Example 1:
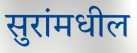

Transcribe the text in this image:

सुरांमधील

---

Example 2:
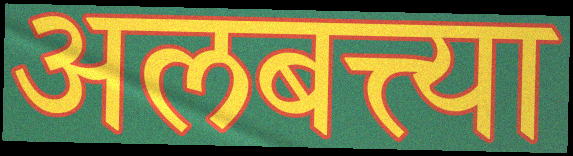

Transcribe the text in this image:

अलबत्त्या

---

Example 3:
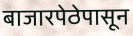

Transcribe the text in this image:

बाजारपेठेपासून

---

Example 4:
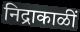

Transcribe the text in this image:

निद्राकाळीं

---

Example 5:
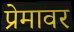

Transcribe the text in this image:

प्रेमावर